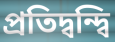
প্রতিদ্বন্দ্বি